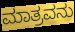
ಮಾತ್ರವನು